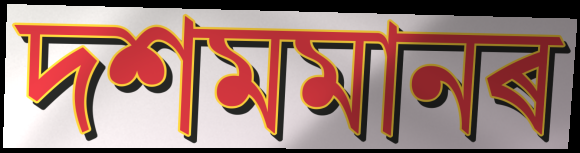
দশমমানৰ